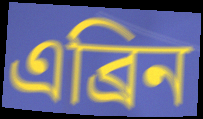
এব্ৰিন